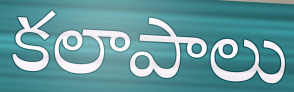
కలాపాలు